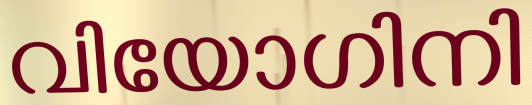
വിയോഗിനി